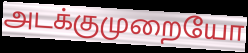
அடக்குமுறையோ